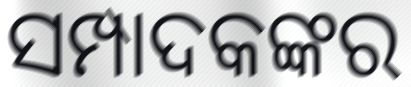
ସମ୍ପାଦକଙ୍କର